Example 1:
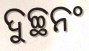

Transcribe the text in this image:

ଦୁଚ୍ଛନଂ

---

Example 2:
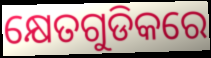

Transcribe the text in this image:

କ୍ଷେତଗୁଡିକରେ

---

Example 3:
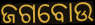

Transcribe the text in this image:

ଜଗବୋଉ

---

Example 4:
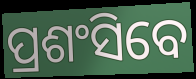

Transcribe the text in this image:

ପ୍ରଶଂସିବେ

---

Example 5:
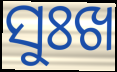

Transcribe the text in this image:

ସୁଃଖ